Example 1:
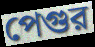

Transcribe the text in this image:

পেগুর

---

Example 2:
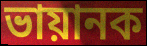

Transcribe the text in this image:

ভায়ানক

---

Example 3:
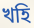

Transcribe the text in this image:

খহি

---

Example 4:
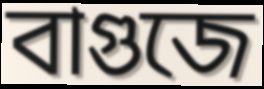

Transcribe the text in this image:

বাগুজে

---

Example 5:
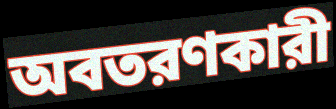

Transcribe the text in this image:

অবতরণকারী